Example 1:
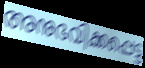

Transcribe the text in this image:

അനുഭവിക്കപ്പെട്ട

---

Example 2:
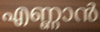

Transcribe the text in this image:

എണ്ണാൻ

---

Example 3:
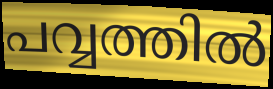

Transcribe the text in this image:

പവ്വത്തിൽ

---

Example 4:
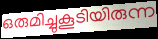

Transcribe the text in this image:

ഒരുമിച്ചുകൂടിയിരുന്ന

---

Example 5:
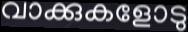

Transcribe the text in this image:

വാക്കുകളോടു